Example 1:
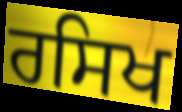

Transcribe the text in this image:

ਰਸਿਖ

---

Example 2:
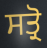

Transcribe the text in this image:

ਸਤ੍ਰੋ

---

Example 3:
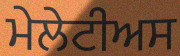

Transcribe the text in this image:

ਮੇਲੇਟੀਅਸ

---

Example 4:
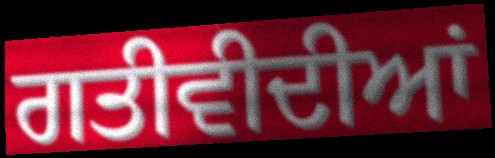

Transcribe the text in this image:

ਗਤੀਵੀਦੀਆਂ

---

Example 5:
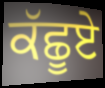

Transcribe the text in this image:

ਕੱਛੂਏ